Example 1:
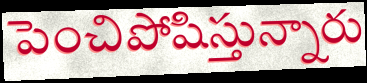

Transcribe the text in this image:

పెంచిపోషిస్తున్నారు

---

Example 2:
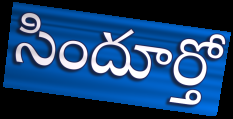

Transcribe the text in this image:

సిందూర్తో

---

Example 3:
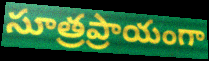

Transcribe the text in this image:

సూత్రప్రాయంగా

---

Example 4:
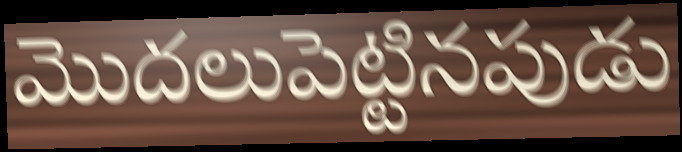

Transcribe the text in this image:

మొదలుపెట్టినపుడు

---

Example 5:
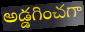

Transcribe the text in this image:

అడ్డగించగా